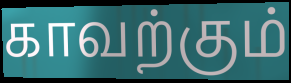
காவற்கும்